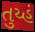
તુય્હં